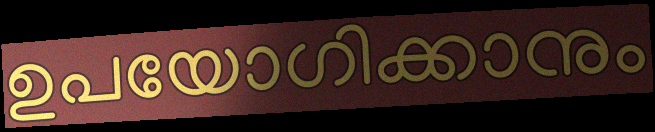
ഉപയോഗിക്കാനും